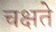
चक्षते